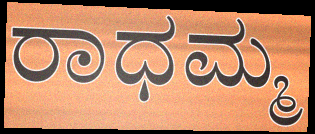
ರಾಧಮ್ಮ